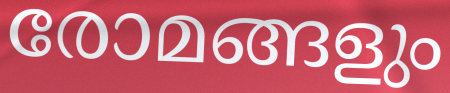
രോമങ്ങളും